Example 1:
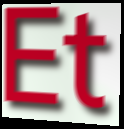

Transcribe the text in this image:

Et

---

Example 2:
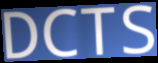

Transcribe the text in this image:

DCTS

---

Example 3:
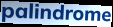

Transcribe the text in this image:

palindrome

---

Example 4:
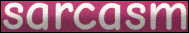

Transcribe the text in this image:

sarcasm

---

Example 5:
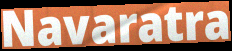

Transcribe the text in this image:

Navaratra